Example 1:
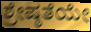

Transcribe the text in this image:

ಶ್ರೇಷ್ಠತೆಯೇ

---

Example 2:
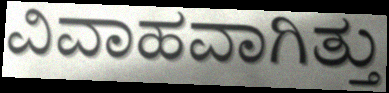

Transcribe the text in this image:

ವಿವಾಹವಾಗಿತ್ತು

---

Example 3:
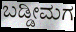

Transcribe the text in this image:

ಬಡ್ಡೀಮಗ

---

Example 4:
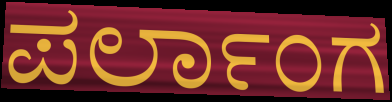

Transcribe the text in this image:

ಪರ್ಲಾಂಗ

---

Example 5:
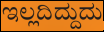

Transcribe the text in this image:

ಇಲ್ಲದಿದ್ದುದು